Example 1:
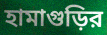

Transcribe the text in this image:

হামাগুড়ির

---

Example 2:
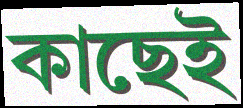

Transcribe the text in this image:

কাছেই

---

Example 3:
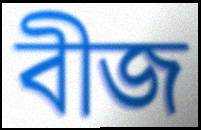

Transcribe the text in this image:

বীজ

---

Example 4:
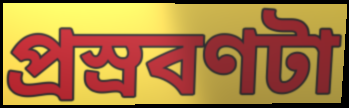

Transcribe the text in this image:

প্রস্রবণটা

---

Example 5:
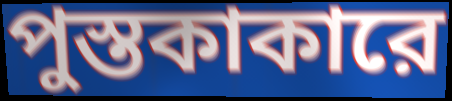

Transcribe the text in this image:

পুস্তকাকারে